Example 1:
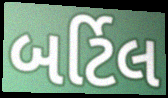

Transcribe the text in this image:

બર્ટિલ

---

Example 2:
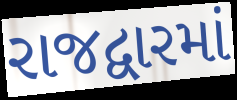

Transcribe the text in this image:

રાજદ્વારમાં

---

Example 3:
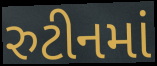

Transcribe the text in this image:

રુટીનમાં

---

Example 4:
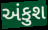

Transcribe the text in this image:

અંકુશ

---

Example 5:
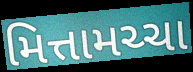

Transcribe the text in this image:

મિત્તામચ્ચા